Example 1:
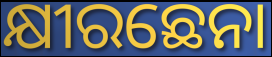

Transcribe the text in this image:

କ୍ଷୀରଛେନା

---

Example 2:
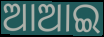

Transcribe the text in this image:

ଆଆଇ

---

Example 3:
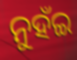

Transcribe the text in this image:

ନୁହଁଇ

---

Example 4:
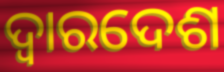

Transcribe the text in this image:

ଦ୍ୱାରଦେଶ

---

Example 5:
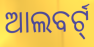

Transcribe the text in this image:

ଆଲବର୍ଟ୍